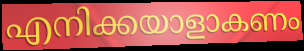
എനിക്കയാളാകണം